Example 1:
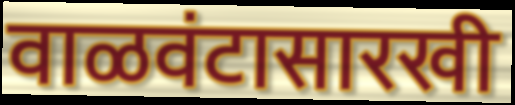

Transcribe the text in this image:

वाळवंटासारखी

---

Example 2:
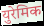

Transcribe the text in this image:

युरेमिक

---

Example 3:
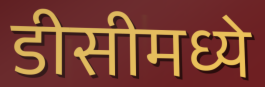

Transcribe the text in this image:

डीसीमध्ये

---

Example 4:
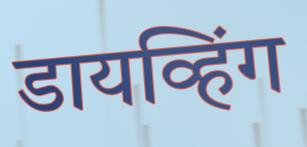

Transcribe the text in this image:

डायव्हिंग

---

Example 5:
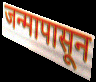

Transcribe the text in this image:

जन्मापासून